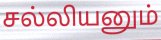
சல்லியனும்